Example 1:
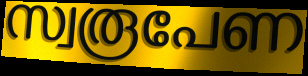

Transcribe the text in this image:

സ്വരൂപേണ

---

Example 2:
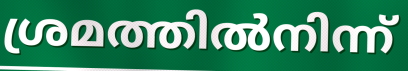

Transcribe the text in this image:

ശ്രമത്തിൽനിന്ന്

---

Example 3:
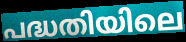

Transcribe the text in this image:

പദ്ധതിയിലെ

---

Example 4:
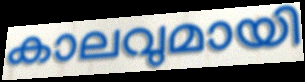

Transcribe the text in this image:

കാലവുമായി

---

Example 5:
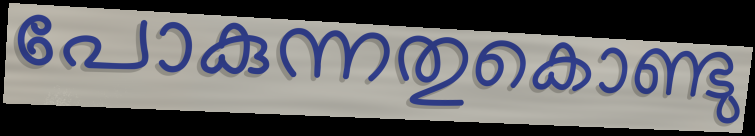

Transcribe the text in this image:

പോകുന്നതുകൊണ്ടു